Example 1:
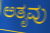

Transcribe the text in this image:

ಅತೃವು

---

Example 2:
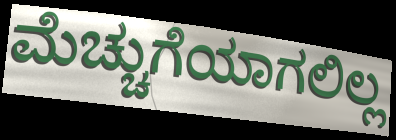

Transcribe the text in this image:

ಮೆಚ್ಚುಗೆಯಾಗಲಿಲ್ಲ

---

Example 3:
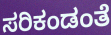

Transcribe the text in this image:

ಸರಿಕಂಡಂತೆ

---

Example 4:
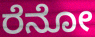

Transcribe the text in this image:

ರೆನೋ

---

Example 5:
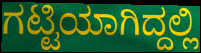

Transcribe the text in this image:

ಗಟ್ಟಿಯಾಗಿದ್ದಲ್ಲಿ